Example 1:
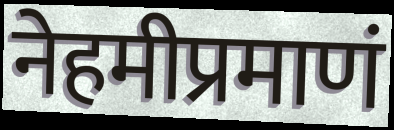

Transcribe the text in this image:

नेहमीप्रमाणं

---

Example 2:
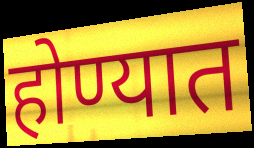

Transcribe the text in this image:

होण्यात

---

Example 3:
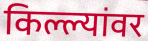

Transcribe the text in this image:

किल्ल्यांवर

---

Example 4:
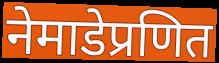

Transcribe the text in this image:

नेमाडेप्रणित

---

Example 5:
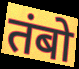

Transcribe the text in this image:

तंबो